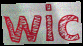
wic